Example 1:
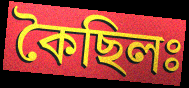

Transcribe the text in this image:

কৈছিলঃ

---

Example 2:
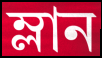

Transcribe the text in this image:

ম্লান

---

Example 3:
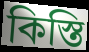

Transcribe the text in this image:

কিস্তি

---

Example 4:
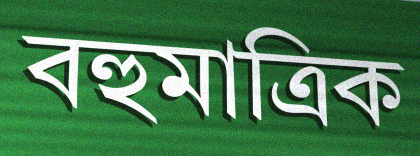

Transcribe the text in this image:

বহুমাত্ৰিক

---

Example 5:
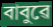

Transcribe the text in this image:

বাবুৱে